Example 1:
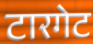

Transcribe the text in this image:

टारगेट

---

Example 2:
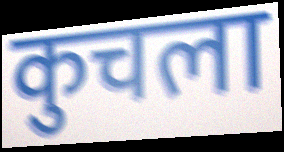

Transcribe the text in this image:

कुचला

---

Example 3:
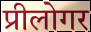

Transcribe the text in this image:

प्रीलोगर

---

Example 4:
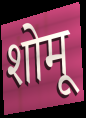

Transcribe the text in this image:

शोमू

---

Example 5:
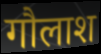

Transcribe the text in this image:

गौलाश